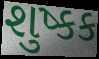
શુષ્કક